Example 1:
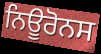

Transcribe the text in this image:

ਨਿਊਰੋਨਸ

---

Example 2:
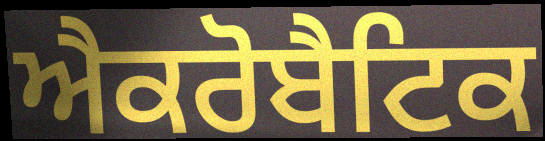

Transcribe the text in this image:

ਐਕਰੋਬੈਟਿਕ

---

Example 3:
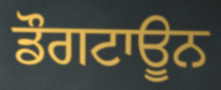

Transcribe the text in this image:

ਡੌਗਟਾਊਨ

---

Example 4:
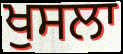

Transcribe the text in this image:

ਖੁਸਲਾ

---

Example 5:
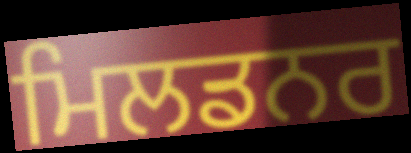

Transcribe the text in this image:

ਮਿਲਡਨਰ